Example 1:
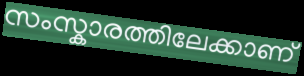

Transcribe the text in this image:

സംസ്കാരത്തിലേക്കാണ്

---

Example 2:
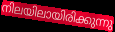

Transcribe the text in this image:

നിലയിലായിരിക്കുന്നു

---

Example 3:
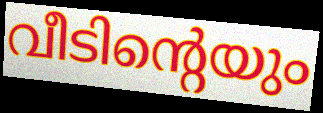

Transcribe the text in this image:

വീടിന്റെയും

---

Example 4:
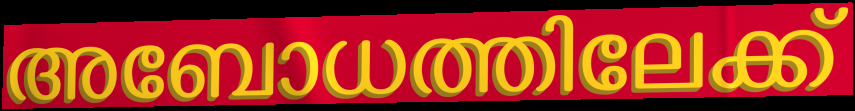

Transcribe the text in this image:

അബോധത്തിലേക്ക്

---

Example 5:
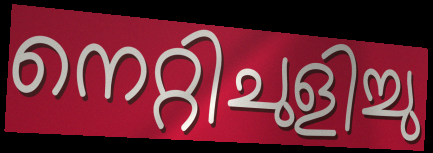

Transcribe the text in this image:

നെറ്റിചുളിച്ചു